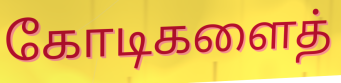
கோடிகளைத்